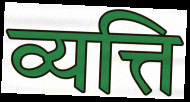
व्यत्ति